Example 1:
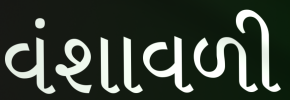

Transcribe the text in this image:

વંશાવળી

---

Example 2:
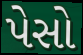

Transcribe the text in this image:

પેસો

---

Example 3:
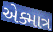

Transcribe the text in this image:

એક્માત્ર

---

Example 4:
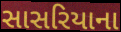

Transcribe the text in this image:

સાસરિયાના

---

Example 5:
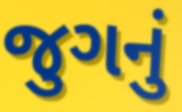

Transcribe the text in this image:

જુગનું